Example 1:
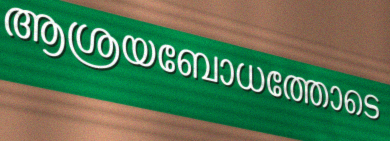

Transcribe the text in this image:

ആശ്രയബോധത്തോടെ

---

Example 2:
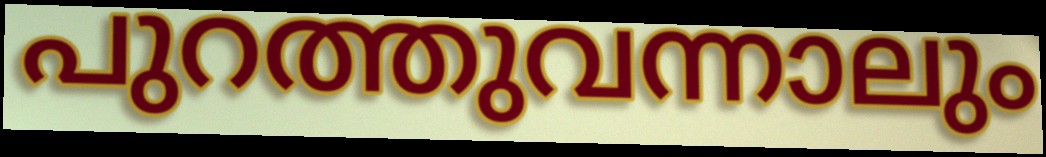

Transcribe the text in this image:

പുറത്തുവന്നാലും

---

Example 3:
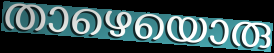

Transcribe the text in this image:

താഴെയൊരു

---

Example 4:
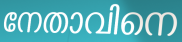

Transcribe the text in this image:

നേതാവിനെ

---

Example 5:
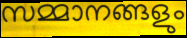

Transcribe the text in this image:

സമ്മാനങ്ങളും